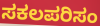
ಸಕಲಪರಿಸಂ